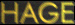
HAGE